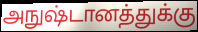
அநுஷ்டானத்துக்கு